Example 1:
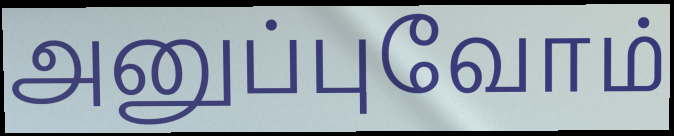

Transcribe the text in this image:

அனுப்புவோம்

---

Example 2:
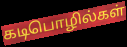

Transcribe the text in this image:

கடிபொழில்கள்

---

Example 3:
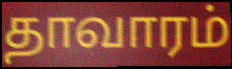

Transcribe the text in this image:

தாவாரம்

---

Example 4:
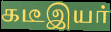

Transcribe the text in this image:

கடீஇயர்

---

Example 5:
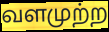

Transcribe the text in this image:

வளமுற்ற